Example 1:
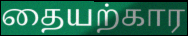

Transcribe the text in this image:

தையற்கார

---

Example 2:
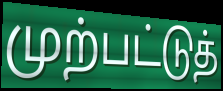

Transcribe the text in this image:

முற்பட்டுத்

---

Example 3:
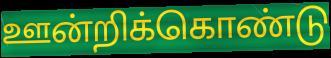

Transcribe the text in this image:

ஊன்றிக்கொண்டு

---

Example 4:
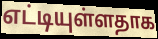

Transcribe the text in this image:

எட்டியுள்ளதாக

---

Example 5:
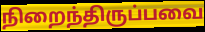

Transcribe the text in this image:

நிறைந்திருப்பவை